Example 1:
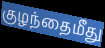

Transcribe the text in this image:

குழந்தைமீது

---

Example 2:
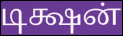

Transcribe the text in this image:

டிக்ஷன்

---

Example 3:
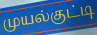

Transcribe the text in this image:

முயல்குட்டி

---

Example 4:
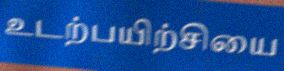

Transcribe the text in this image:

உடற்பயிற்சியை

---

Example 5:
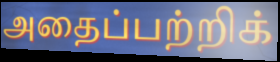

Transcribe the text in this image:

அதைப்பற்றிக்